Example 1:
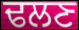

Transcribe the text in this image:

ਢਲਣ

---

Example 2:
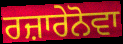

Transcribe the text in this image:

ਰਜ਼ਾਰੇਨੋਵਾ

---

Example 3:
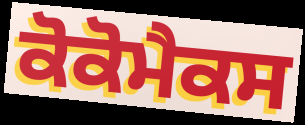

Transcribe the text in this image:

ਕੋਕੋਮੈਕਸ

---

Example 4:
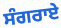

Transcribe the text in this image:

ਸੰਗਰਾਏ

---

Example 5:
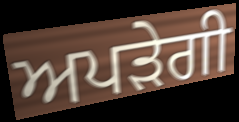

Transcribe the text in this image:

ਅਪੜੇਗੀ